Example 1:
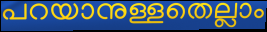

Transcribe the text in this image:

പറയാനുള്ളതെല്ലാം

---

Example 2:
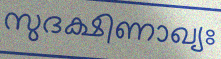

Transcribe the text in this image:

സുദക്ഷിണാഖ്യഃ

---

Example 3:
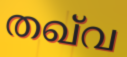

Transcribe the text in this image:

തഖ്‌വ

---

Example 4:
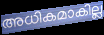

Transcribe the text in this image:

അധികമാകില്ല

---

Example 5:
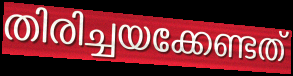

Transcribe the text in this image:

തിരിച്ചയക്കേണ്ടത്